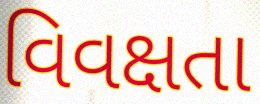
વિવક્ષતા